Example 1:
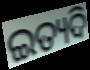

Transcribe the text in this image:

ଇତ୍ୟଦି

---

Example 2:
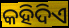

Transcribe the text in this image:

କହିଦିଏ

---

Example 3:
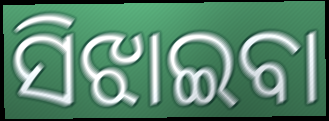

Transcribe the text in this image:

ସିଝାଇବା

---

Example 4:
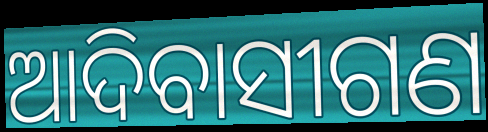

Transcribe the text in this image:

ଆଦିବାସୀଗଣ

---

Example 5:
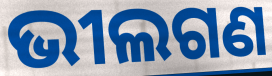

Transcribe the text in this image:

ଭୀଲଗଣ